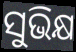
ସୁଭିକ୍ଷ